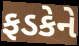
ફડકેને